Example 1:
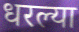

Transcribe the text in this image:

धरल्या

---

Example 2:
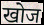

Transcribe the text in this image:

खोज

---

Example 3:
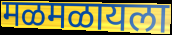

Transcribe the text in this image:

मळमळायला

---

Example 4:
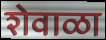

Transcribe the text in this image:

शेवाळा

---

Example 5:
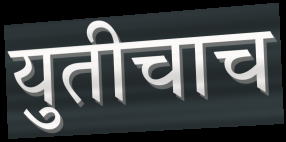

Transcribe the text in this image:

युतीचाच